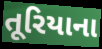
તૂરિયાના